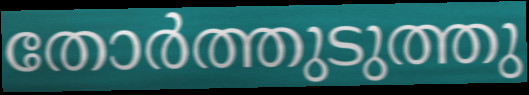
തോർത്തുടുത്തു